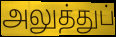
அலுத்துப்